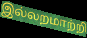
இல்லறமாற்றி